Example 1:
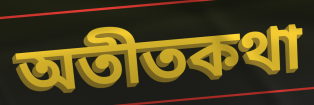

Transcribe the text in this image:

অতীতকথা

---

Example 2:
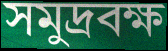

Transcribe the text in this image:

সমুদ্রবক্ষ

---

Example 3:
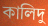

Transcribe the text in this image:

কালিদু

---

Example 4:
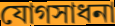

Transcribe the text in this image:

যোগসাধনা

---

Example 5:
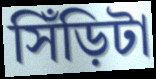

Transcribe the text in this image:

সিঁড়িটা